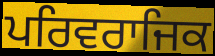
ਪਰਿਵਰਾਜਿਕ